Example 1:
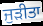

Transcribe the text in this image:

ਜੁੜੀਤਾ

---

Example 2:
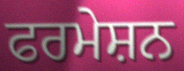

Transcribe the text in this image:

ਫਰਮੇਸ਼ਨ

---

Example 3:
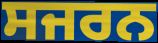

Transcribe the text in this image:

ਸਜਰਨ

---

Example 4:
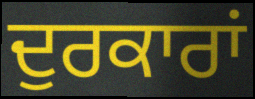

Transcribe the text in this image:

ਦੁਰਕਾਰਾਂ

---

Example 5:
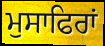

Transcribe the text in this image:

ਮੁਸਾਫਿਰਾਂ